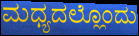
ಮಧ್ಯದಲ್ಲೊಂದು